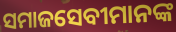
ସମାଜସେବୀମାନଙ୍କ